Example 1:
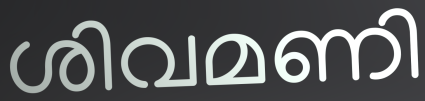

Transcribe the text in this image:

ശിവമണി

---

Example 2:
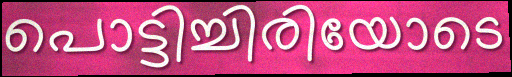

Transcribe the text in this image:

പൊട്ടിച്ചിരിയോടെ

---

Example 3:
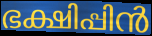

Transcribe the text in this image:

ഭക്ഷിപ്പിൻ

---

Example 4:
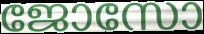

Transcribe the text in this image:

ജോസോ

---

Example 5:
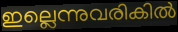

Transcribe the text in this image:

ഇല്ലെന്നുവരികിൽ